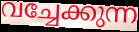
വച്ചേക്കുന്ന